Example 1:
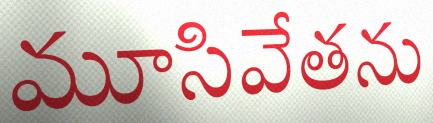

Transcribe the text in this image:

మూసివేతను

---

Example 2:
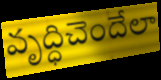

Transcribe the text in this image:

వృద్ధిచెందేలా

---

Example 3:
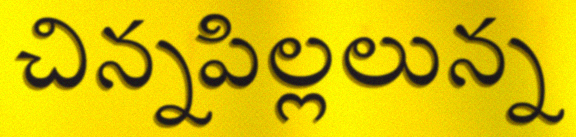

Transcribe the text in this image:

చిన్నపిల్లలున్న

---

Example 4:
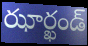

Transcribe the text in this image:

ఝార్ఖండ్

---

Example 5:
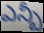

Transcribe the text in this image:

ఎన్బీ